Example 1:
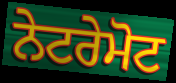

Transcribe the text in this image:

ਨੇਟਰੇਮੋਟ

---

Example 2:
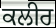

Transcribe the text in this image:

ਕਲੀਰ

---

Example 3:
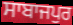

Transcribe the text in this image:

ਸਾਬਾਜਪੁਰ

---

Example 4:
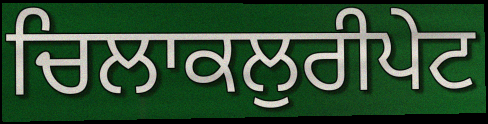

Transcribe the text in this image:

ਚਿਲਾਕਲੁਰੀਪੇਟ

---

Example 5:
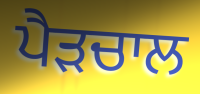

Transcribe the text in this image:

ਪੈੜਚਾਲ